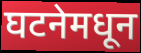
घटनेमधून